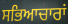
ਸਭਿਆਚਾਰਾਂ